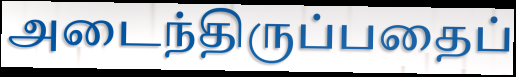
அடைந்திருப்பதைப்